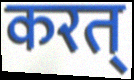
करत्